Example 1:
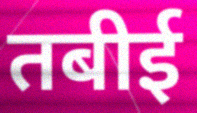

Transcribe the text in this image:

तबीई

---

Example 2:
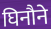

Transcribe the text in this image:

घिनौने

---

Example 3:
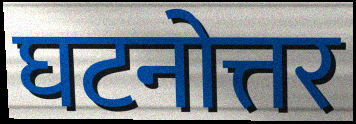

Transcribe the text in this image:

घटनोत्तर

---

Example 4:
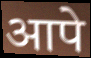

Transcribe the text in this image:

आपे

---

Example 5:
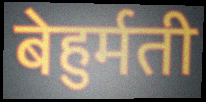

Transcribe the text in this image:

बेहुर्मती